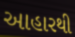
આહારથી